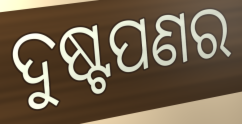
ଦୁଷ୍ଟପଣର